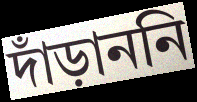
দাঁড়াননি